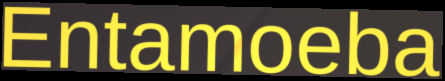
Entamoeba